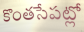
కొంతసేపట్లో